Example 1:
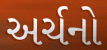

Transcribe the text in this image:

અર્ચનો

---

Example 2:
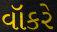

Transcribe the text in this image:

વૉકરે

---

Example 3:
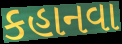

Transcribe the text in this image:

કહાનવા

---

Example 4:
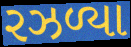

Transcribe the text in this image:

રઝળ્યા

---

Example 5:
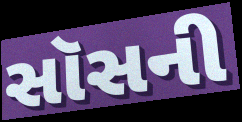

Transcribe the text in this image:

સૉસની